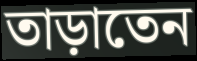
তাড়াতেন